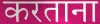
करताना